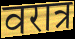
वरात्र